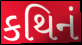
કથિનં